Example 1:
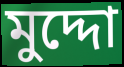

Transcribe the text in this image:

মুদ্দো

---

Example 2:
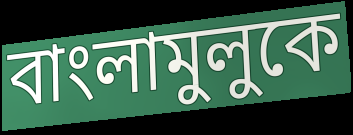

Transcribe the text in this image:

বাংলামুলুকে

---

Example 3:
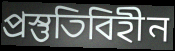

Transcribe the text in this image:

প্রস্তুতিবিহীন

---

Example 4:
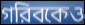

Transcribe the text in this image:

গরিবকেও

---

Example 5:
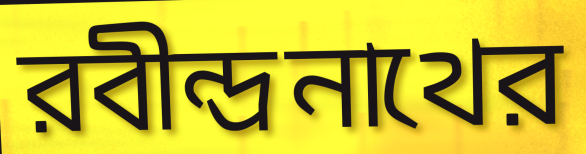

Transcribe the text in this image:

রবীন্দ্রনাথের